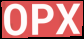
OPX